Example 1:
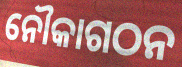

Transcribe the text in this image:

ନୌକାଗଠନ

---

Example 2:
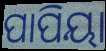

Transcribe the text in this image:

ପାପିୟା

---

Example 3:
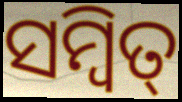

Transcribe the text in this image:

ସମ୍ବିତ୍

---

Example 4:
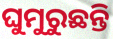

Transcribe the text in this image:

ଘୁମୁରୁଛନ୍ତି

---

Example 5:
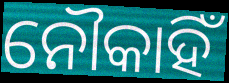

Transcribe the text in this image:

ନୌକାହିଁ